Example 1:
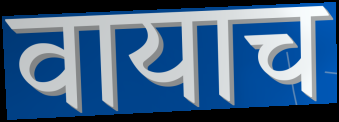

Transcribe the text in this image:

वायाच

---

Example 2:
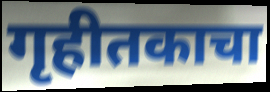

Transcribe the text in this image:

गृहीतकाचा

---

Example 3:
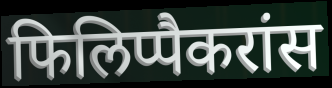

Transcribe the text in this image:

फिलिप्पैकरांस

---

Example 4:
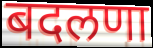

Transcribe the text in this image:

बदलणा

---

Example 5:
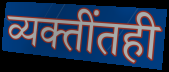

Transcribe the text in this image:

व्यक्तींतही